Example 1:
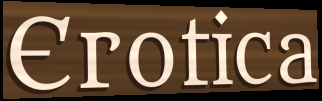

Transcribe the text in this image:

Erotica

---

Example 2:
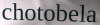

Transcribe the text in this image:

chotobela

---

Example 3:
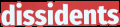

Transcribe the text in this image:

dissidents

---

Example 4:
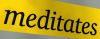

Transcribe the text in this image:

meditates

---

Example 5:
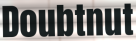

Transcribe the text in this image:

Doubtnut